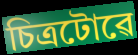
চিত্ৰটোৱে